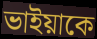
ভাইয়াকে